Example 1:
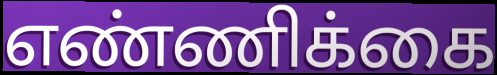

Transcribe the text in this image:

எண்ணிக்கை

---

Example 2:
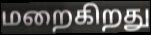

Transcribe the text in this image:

மறைகிறது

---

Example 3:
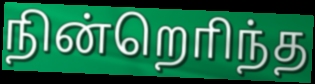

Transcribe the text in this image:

நின்றெரிந்த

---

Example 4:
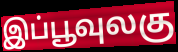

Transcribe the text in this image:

இப்பூவுலகு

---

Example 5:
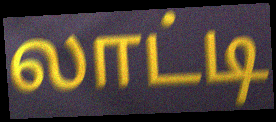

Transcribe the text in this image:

லாட்டி